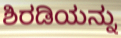
ಶಿರಡಿಯನ್ನು